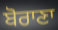
ਬੋਰਾਣਾ